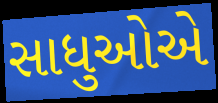
સાધુઓએ